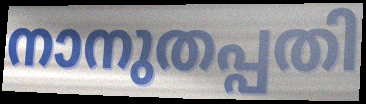
നാനുതപ്പതി